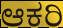
ಆಕರಿ